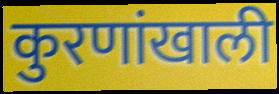
कुरणांखाली